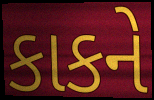
કાકને